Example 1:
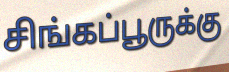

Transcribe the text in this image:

சிங்கப்பூருக்கு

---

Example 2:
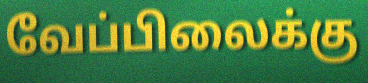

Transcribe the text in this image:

வேப்பிலைக்கு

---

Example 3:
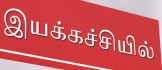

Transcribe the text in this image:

இயக்கச்சியில்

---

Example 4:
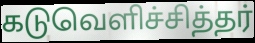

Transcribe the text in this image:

கடுவெளிச்சித்தர்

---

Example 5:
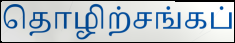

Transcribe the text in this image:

தொழிற்சங்கப்